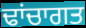
ਢਾਂਚਾਗਤ